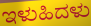
ಇಳುಹಿದಳು